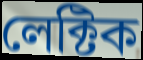
লেক্টিক